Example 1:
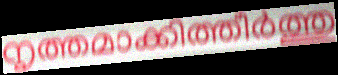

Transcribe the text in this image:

നൃത്തമാക്കിത്തീർത്തു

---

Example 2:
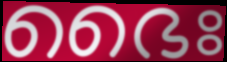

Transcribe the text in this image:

ഭൈഃ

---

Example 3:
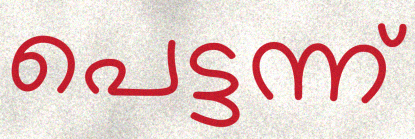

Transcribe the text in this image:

പെട്ടന്ന്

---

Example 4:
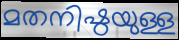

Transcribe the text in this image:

മതനിഷ്ഠയുള്ള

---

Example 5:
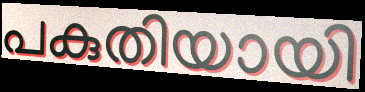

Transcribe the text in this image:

പകുതിയായി